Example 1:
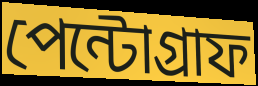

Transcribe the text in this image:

পেন্টোগ্রাফ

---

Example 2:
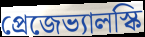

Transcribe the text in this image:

প্রেজেভ্যালস্কি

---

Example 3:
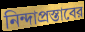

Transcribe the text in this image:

নিন্দাপ্রস্তাবের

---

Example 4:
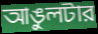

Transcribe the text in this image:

আঙুলটার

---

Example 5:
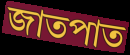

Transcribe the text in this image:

জাতপাত